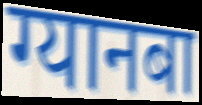
ग्यानबा